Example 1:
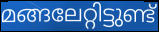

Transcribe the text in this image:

മങ്ങലേറ്റിട്ടുണ്ട്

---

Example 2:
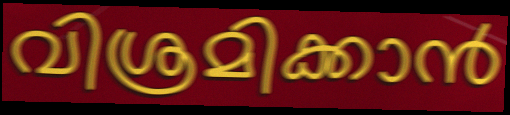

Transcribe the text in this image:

വിശ്രമിക്കാൻ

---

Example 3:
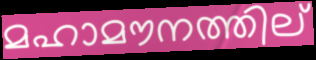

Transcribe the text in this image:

മഹാമൗനത്തില്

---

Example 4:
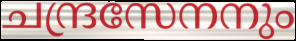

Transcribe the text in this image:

ചന്ദ്രസേനനും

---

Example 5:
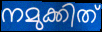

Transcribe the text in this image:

നമുക്കിത്